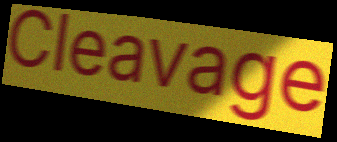
Cleavage